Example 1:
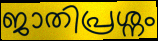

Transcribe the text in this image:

ജാതിപ്രശ്നം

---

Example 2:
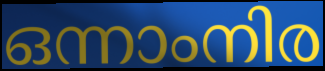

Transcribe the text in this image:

ഒന്നാംനിര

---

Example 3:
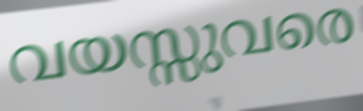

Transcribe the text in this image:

വയസ്സുവരെ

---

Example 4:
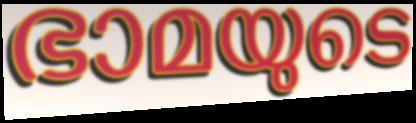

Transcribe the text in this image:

ഭാമയുടെ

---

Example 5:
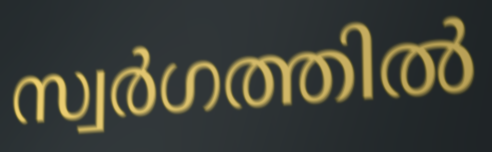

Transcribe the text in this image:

സ്വർഗത്തിൽ